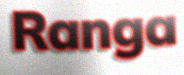
Ranga